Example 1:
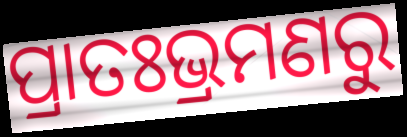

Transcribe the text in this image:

ପ୍ରାତଃଭ୍ରମଣରୁ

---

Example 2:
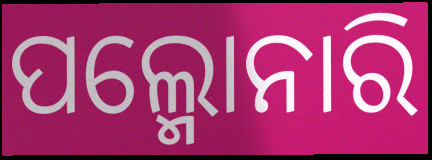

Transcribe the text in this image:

ପଲ୍ମୋନାରି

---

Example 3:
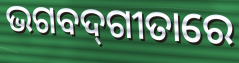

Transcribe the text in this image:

ଭଗବଦ୍‌ଗୀତାରେ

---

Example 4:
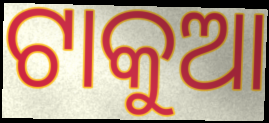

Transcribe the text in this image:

ଟାକୁଆ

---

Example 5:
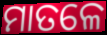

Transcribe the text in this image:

ମାତଳେ